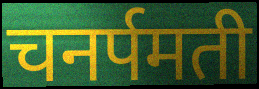
चनर्पमती